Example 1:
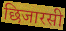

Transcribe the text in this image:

छिजारसी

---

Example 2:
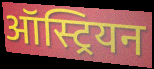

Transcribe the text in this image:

ऑस्ट्रियन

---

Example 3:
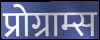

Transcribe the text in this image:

प्रोग्राम्‍स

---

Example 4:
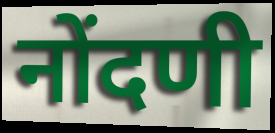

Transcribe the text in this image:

नोंदणी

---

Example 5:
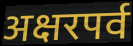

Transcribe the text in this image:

अक्षरपर्व